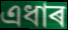
এধাৰ